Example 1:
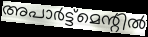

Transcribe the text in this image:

അപാർട്ട്മെന്റിൽ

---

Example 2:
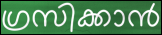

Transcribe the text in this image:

ഗ്രസിക്കാൻ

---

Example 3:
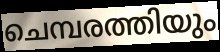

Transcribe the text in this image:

ചെമ്പരത്തിയും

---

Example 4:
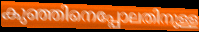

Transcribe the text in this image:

കുഞ്ഞിനെപ്പോലതിനുള്ള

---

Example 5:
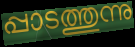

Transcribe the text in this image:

പ്പാടത്തുന്നു